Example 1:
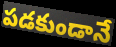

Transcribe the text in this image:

పడకుండానే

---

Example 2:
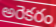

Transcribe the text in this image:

అరెకరం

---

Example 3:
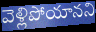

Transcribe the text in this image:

వెళ్లిపోయానని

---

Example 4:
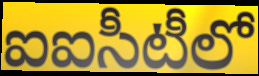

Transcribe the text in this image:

ఐఐసీటీలో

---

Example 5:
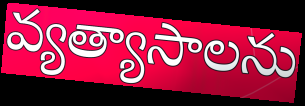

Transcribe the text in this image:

వ్యత్యాసాలను